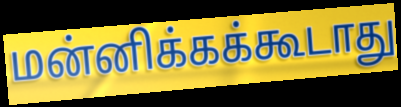
மன்னிக்கக்கூடாது